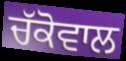
ਚੱਕੋਵਾਲ